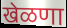
खेळणा